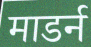
माडर्न